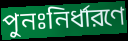
পুনঃনির্ধারণে